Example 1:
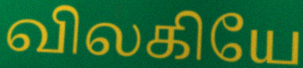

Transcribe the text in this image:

விலகியே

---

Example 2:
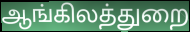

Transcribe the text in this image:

ஆங்கிலத்துறை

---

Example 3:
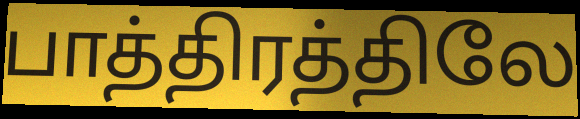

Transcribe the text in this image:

பாத்திரத்திலே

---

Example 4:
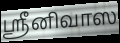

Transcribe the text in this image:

ஸ்ரீனிவாஸ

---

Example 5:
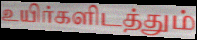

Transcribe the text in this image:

உயிர்களிடத்தும்